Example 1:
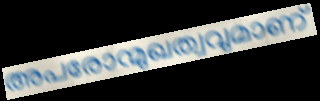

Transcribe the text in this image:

അപരോന്മുഖത്വവുമാണ്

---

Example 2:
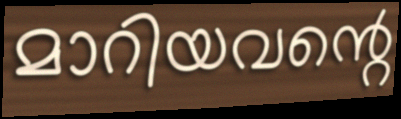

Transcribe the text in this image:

മാറിയവന്റെ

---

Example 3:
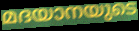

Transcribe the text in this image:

മദയാനയുടെ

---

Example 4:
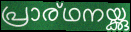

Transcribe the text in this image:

പ്രാര്ഥനയ്ക്കു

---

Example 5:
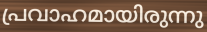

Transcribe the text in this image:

പ്രവാഹമായിരുന്നു